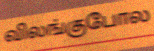
விலங்குபோல